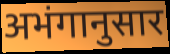
अभंगानुसार